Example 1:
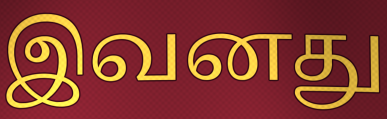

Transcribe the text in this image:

இவனது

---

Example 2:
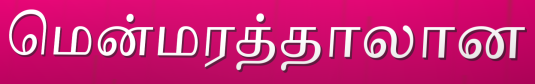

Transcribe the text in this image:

மென்மரத்தாலான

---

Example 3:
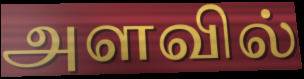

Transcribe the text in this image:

அளவில்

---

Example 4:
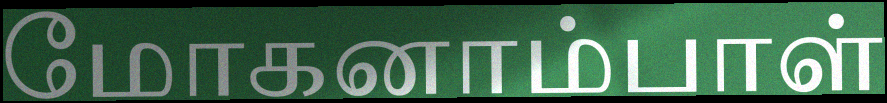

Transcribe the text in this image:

மோகனாம்பாள்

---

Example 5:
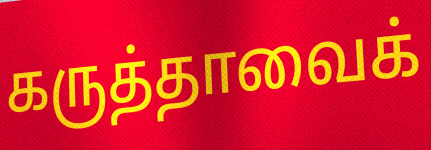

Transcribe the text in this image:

கருத்தாவைக்